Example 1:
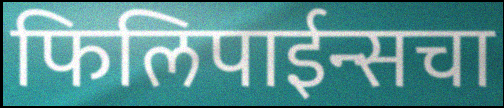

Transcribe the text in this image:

फिलिपाईन्सचा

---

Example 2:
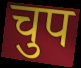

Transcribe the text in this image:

चुप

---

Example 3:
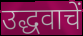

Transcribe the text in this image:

उद्धवाचें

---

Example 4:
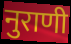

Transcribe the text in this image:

नुराणी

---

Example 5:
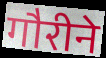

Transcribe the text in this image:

गौरीने